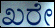
ಖರೇ